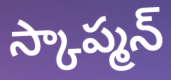
స్కాప్మన్